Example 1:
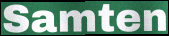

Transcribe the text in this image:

Samten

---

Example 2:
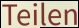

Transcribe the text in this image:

Teilen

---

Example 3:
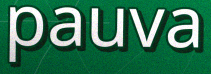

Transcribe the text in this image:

pauva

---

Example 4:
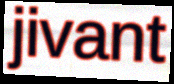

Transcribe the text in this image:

jivant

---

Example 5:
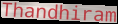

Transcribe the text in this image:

Thandhiram